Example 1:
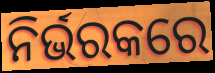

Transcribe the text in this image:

ନିର୍ଭରକରେ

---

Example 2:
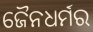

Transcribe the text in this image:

ଜୈନଧର୍ମର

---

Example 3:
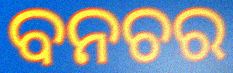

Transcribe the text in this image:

ବନଚର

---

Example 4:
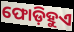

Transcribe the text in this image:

ଫୋଡ଼ିହୁଏ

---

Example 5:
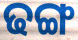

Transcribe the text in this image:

ଢଙ୍ଗ